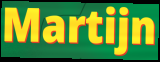
Martijn